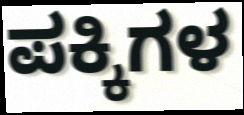
ಪಕ್ಕಿಗಳ